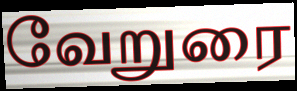
வேறுரை